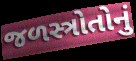
જળસ્ત્રોતોનું